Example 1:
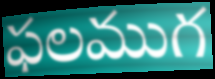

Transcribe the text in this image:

ఫలముగ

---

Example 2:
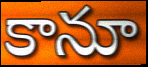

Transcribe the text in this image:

కానూ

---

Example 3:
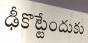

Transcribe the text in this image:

ఢీకొట్టేందుకు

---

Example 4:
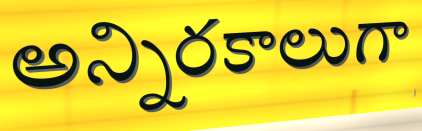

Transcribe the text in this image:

అన్నిరకాలుగా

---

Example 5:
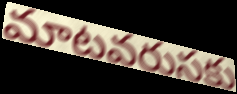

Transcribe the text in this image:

మాటవరుసకు